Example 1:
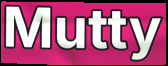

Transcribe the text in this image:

Mutty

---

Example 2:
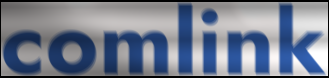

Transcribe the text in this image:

comlink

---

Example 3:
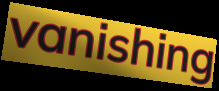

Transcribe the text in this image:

vanishing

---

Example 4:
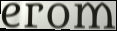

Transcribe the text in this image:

erom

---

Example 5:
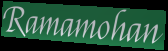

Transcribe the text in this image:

Ramamohan